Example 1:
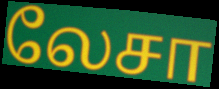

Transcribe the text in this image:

லேசா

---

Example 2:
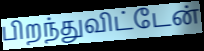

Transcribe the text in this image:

பிறந்துவிட்டேன்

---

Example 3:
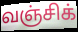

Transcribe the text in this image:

வஞ்சிக்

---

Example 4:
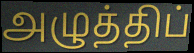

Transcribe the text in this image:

அழுத்திப்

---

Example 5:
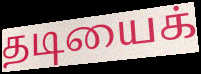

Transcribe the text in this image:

தடியைக்